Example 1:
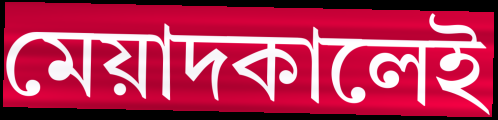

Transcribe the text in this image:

মেয়াদকালেই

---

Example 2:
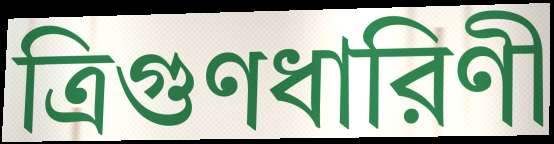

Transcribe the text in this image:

ত্রিগুণধারিণী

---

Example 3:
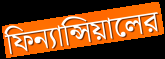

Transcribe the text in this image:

ফিন্যান্সিয়ালের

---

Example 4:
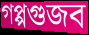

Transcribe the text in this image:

গপ্পগুজব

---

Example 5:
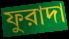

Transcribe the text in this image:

ফুরাদা